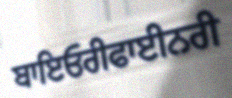
ਬਾਇਓਰੀਫਾਈਨਰੀ